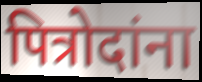
पित्रोदांना